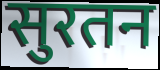
सुरतन